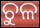
ଚୁଳ